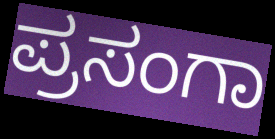
ಪ್ರಸಂಗಾ